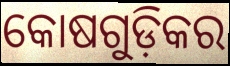
କୋଷଗୁଡ଼ିକର